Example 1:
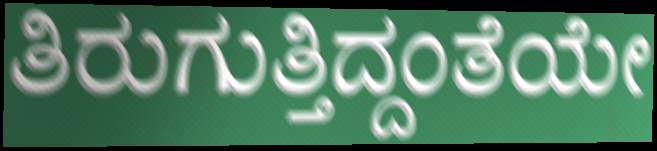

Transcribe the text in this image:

ತಿರುಗುತ್ತಿದ್ದಂತೆಯೇ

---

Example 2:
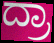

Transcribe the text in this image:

ದ್ರಾ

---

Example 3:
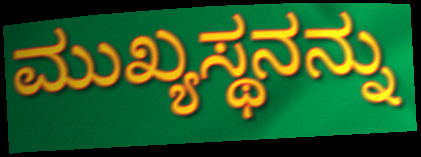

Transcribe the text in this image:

ಮುಖ್ಯಸ್ಥನನ್ನು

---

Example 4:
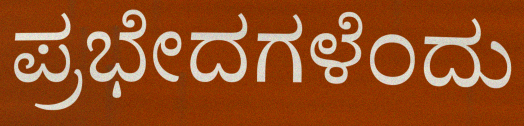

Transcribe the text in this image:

ಪ್ರಭೇದಗಳೆಂದು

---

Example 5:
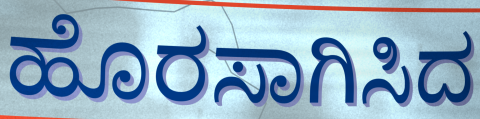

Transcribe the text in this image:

ಹೊರಸಾಗಿಸಿದ